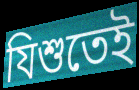
যিশুতেই